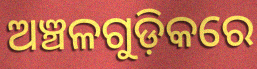
ଅଞ୍ଚଳଗୁଡ଼ିକରେ